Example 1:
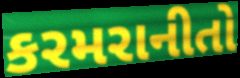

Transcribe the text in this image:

કરમરાનીતો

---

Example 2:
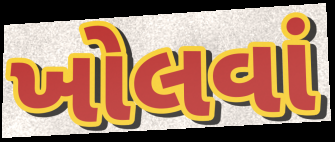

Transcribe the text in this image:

ખોલવાં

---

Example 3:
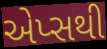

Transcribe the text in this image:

એપ્સથી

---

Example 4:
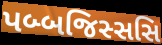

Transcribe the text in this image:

પબ્બજિસ્સસિ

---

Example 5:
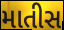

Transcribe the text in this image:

માતીસ